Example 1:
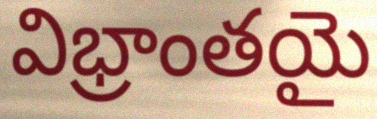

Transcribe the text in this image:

విభ్రాంతయై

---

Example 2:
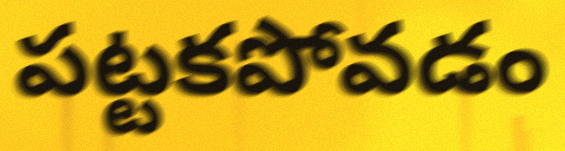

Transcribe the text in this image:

పట్టకపోవడం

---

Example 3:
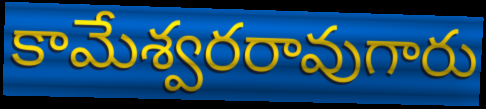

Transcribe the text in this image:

కామేశ్వరరావుగారు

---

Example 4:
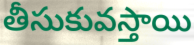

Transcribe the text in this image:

తీసుకువస్తాయి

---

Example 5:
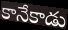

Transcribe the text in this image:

కానేకాడు